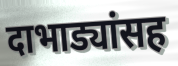
दाभाड्यांसह